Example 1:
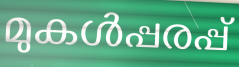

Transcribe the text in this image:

മുകൾപ്പരപ്പ്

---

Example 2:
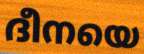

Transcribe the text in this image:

ദീനയെ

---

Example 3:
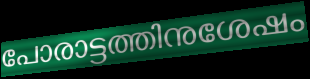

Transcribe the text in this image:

പോരാട്ടത്തിനുശേഷം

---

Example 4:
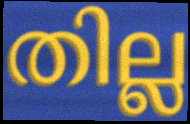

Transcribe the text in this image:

തില്ല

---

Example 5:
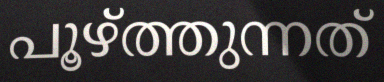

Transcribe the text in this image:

പൂഴ്ത്തുന്നത്